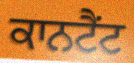
ਕਾਨਟੈਂਟ